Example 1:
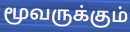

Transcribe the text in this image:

மூவருக்கும்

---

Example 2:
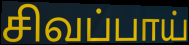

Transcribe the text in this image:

சிவப்பாய்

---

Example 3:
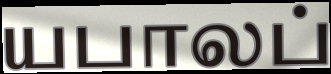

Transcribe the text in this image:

யபாலப்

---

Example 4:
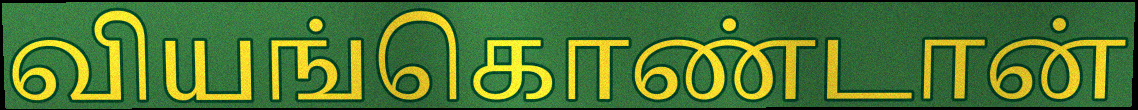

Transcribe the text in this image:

வியங்கொண்டான்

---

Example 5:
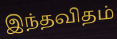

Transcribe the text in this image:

இந்தவிதம்